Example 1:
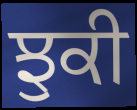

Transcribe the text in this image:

ਝੁਕੀ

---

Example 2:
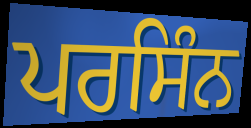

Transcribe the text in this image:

ਪਰਸਿੰਨ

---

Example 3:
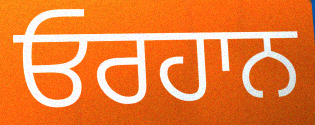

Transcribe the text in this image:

ਓਰਹਾਨ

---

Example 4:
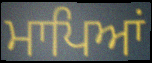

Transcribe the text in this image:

ਮਾਪਿਆਂ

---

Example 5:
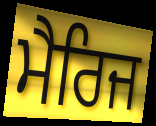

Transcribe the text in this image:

ਮੈਰਿਜ